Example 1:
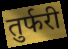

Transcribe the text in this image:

तुर्फरी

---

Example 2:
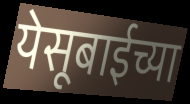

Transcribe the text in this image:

येसूबाईच्या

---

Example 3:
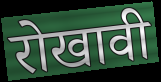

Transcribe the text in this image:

रोखावी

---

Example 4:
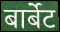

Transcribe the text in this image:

बार्बेट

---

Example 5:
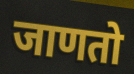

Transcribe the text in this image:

जाणतो